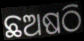
ଛଅଷଠି